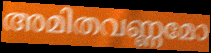
അമിതവണ്ണമോ